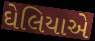
ઘેલિયાએ